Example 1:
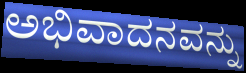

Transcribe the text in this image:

ಅಭಿವಾದನವನ್ನು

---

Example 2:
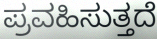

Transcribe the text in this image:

ಪ್ರವಹಿಸುತ್ತದೆ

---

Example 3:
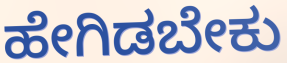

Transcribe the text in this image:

ಹೇಗಿಡಬೇಕು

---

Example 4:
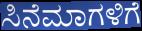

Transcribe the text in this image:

ಸಿನೆಮಾಗಳಿಗೆ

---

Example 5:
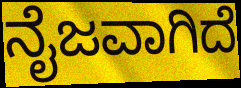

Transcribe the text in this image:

ನೈಜವಾಗಿದೆ